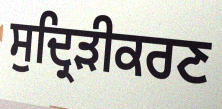
ਸੁਦ੍ਰਿੜੀਕਰਣ